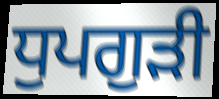
ਧੁਪਗੁੜੀ